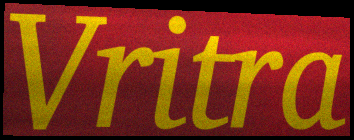
Vritra